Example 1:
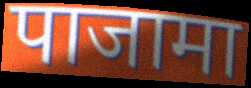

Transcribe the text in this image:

पाजामा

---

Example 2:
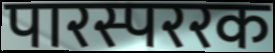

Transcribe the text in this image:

पारस्पररक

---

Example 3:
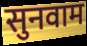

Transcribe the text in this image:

सुनवाम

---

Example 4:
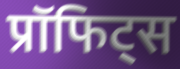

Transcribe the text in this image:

प्रॉफिट्स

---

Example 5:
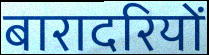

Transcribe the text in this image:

बारादरियों